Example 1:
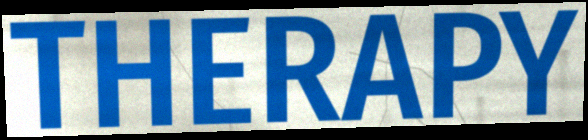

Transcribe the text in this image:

THERAPY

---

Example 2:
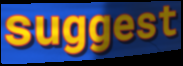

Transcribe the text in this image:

suggest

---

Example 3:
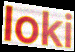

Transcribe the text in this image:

loki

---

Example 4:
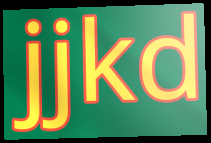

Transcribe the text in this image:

jjkd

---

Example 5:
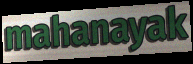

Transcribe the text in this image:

mahanayak